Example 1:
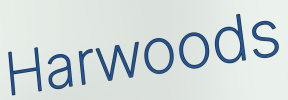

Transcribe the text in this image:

Harwoods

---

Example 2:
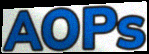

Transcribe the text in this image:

AOPs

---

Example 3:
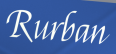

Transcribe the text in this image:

Rurban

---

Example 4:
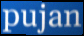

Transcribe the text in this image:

pujan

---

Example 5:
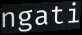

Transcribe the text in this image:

ngati